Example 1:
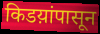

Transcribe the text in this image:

किडय़ांपासून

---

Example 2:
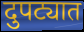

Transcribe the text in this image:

दुपट्यात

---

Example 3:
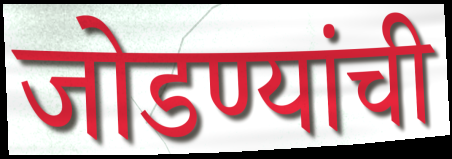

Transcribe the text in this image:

जोडण्यांची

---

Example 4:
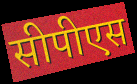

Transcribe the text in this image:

सीपीएस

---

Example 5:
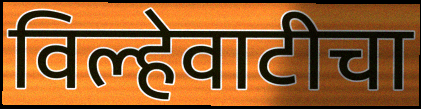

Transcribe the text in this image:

विल्हेवाटीचा